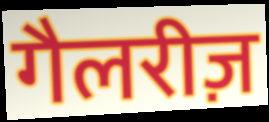
गैलरीज़